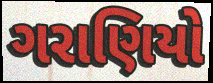
ગરાણિયો